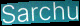
Sarchu